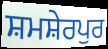
ਸ਼ਮਸ਼ੇਰਪੁਰ